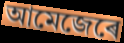
আমেজেৰে